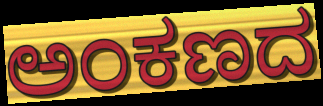
ಅಂಕಣದ